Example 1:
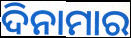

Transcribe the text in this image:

ଦିନାମାର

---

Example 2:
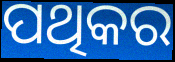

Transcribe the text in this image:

ପଥିକର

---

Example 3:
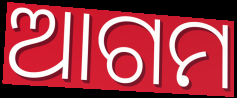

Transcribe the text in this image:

ଆଗମ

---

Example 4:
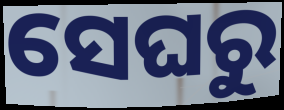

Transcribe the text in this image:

ସେଘରୁ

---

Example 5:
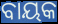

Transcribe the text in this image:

ବାୟକ